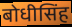
बोधीसिंह